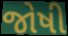
જોષી